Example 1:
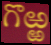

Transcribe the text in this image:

గొఱ్ఱ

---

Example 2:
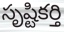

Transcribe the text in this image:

సృష్టికర్తి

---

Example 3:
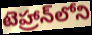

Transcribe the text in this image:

టెహ్రాన్‌లోని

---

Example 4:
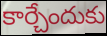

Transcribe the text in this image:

కార్చేందుకు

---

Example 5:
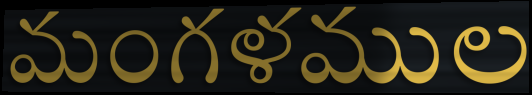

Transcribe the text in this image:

మంగళముల